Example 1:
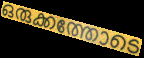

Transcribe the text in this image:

ഒരുക്കത്തോടെ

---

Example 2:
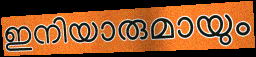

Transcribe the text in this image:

ഇനിയാരുമായും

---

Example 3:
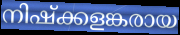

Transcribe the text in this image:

നിഷ്ക്കളങ്കരായ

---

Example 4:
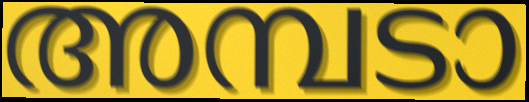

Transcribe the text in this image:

അമ്പടാ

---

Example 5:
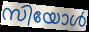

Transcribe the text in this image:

സിയോൾ